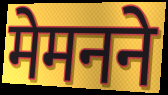
मेमनने